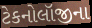
ટેકનોલૉજીના